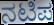
ನಟಿಪ